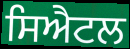
ਸਿਐਟਲ